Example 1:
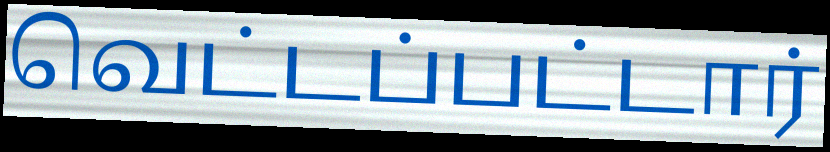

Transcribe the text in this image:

வெட்டப்பட்டார்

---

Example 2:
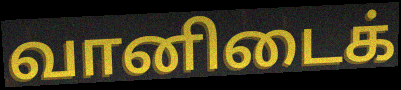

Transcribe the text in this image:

வானிடைக்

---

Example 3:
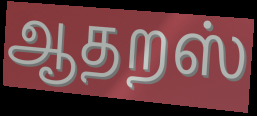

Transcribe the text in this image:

ஆதறஸ்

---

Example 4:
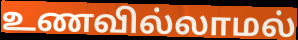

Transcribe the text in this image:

உணவில்லாமல்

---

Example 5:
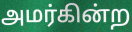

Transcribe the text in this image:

அமர்கின்ற